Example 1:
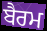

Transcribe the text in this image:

ਬੈਰਮ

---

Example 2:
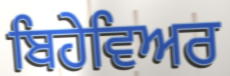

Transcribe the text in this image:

ਬਿਹੇਵਿਅਰ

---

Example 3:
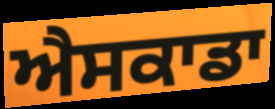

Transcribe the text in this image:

ਐਸਕਾਡਾ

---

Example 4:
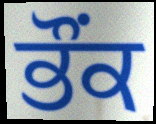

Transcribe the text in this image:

ਭੌਂਕ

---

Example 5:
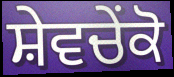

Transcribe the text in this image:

ਸ਼ੇਵਚੇਂਕੋ